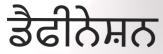
ਡੈਫੀਨੇਸ਼ਨ